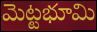
మెట్టభూమి